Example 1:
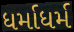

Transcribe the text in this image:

ધર્માધર્મ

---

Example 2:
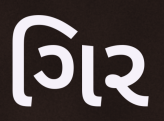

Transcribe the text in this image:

ગિર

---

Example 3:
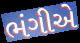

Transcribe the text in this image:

ભંગીએ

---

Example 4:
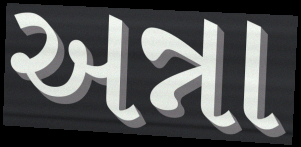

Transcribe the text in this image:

અન્ના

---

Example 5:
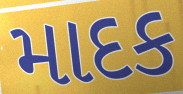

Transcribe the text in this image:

માદક